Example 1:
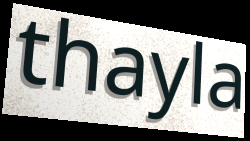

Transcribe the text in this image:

thayla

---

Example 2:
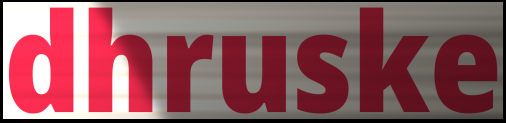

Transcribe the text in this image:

dhruske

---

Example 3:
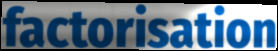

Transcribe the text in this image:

factorisation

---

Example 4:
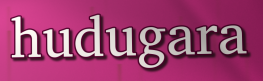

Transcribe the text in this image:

hudugara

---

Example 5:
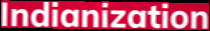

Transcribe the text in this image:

Indianization